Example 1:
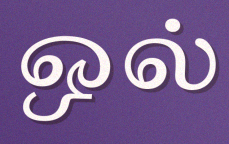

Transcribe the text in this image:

ஒல்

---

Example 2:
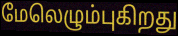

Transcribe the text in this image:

மேலெழும்புகிறது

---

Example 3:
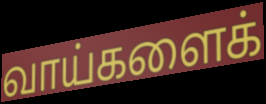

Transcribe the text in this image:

வாய்களைக்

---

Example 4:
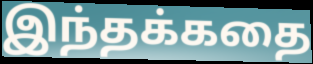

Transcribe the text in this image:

இந்தக்கதை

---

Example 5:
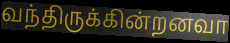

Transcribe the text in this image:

வந்திருக்கின்றனவா